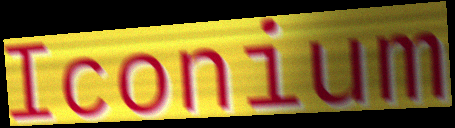
Iconium